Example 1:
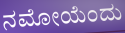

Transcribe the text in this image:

ನಮೋಯೆಂದು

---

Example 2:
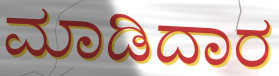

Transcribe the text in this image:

ಮಾಡಿದಾರ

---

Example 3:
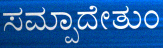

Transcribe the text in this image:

ಸಮ್ಪಾದೇತುಂ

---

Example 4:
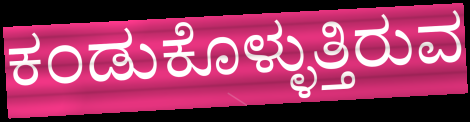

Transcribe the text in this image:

ಕಂಡುಕೊಳ್ಳುತ್ತಿರುವ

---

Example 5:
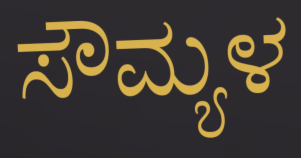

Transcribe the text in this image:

ಸೌಮ್ಯಳ